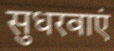
सुधरवाएं